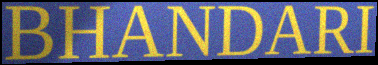
BHANDARI